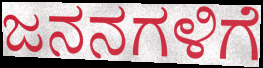
ಜನನಗಳಿಗೆ